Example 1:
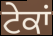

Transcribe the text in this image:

ਟੇਕਾਂ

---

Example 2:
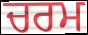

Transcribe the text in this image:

ਚਰਮ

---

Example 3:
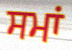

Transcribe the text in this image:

ਸਮਾਂ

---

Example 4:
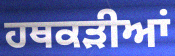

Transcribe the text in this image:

ਹਥਕੜੀਆਂ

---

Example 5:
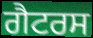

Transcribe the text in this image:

ਗੈਟਰਸ